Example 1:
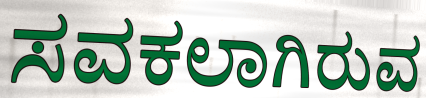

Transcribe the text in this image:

ಸವಕಲಾಗಿರುವ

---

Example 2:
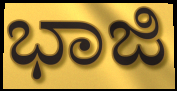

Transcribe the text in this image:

ಭಾಜಿ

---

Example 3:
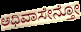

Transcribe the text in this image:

ಅಧಿವಾಸೇನ್ತೋ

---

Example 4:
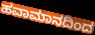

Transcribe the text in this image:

ಹವಾಮಾನದಿಂದ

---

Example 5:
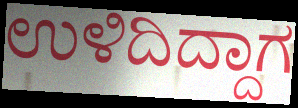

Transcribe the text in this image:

ಉಳಿದಿದ್ದಾಗ